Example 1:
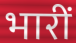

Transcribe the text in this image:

भारीं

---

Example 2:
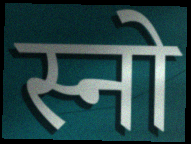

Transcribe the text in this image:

स्नो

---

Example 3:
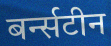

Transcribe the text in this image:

बर्न्सटीन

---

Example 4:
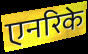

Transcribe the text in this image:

एनरिके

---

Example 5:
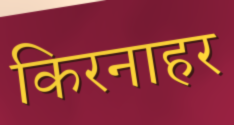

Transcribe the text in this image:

किरनाहर